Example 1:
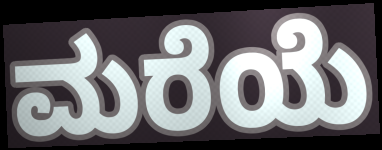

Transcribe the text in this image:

ಮರೆಯೆ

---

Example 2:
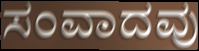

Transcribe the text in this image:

ಸಂವಾದವು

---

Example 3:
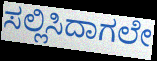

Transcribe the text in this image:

ಸಲ್ಲಿಸಿದಾಗಲೇ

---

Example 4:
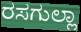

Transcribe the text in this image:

ರಸಗುಲ್ಲಾ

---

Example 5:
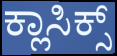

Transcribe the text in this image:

ಕ್ಲಾಸಿಕ್ಸ್